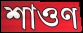
শাওণ